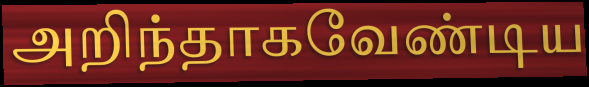
அறிந்தாகவேண்டிய